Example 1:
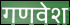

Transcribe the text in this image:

गणवेश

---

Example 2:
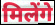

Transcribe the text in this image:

मिलेंगे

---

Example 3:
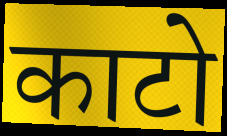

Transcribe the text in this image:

काटो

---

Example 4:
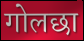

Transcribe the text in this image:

गोलछा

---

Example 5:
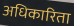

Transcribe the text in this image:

अधिकारिता